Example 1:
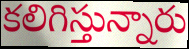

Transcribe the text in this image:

కలిగిస్తున్నారు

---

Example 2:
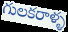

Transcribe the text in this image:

గులకరాళ్ళ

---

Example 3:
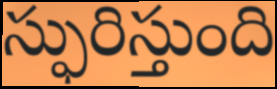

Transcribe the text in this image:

స్ఫురిస్తుంది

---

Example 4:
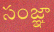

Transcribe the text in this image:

సంజ్ఞా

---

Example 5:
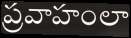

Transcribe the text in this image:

ప్రవాహంలా